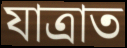
যাত্ৰাত